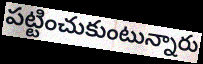
పట్టించుకుంటున్నారు